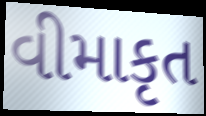
વીમાકૃત